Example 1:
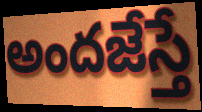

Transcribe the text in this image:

అందజేస్తే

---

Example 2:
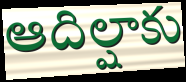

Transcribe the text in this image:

ఆదిల్షాకు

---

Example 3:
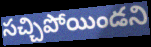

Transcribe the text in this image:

సచ్చిపోయిండని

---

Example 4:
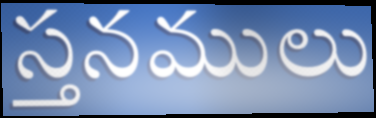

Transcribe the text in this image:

స్తనములు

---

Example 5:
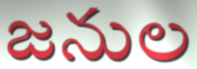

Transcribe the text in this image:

జనుల